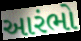
આરંભો